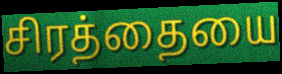
சிரத்தையை